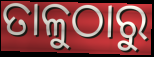
ତାଳୁଠାରୁ